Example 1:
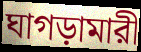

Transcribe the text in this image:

ঘাগড়ামারী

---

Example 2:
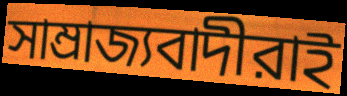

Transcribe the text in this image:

সাম্রাজ্যবাদীরাই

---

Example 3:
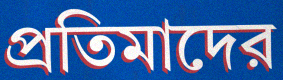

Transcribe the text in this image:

প্রতিমাদের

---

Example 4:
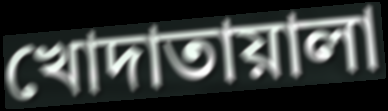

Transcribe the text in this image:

খোদাতায়ালা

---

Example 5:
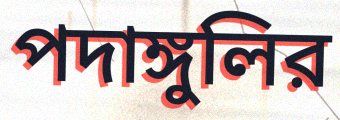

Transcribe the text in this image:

পদাঙ্গুলির